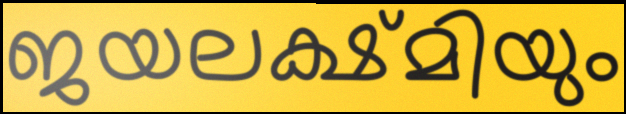
ജയലക്ഷ്മിയും